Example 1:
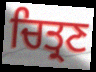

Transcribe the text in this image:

ਚਿਤ੍ਰਣ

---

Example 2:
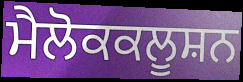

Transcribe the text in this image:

ਮੈਲੋਕਕਲੂਸ਼ਨ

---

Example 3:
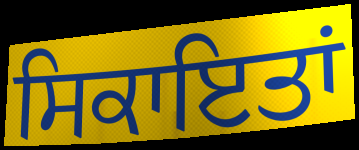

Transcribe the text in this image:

ਸਿਕਾਇਤਾਂ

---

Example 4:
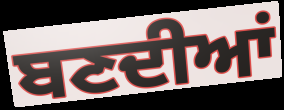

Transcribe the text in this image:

ਬਣਦੀਆਂ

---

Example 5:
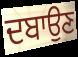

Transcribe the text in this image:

ਦਬਾਉਣ